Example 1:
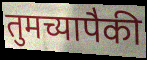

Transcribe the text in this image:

तुमच्यापैकी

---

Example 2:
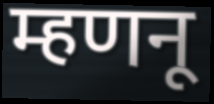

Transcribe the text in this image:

म्हणनू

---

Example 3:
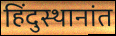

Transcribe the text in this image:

हिंदुस्थानांत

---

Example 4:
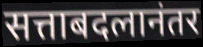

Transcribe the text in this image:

सत्ताबदलानंतर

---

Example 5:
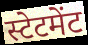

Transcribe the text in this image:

स्टेटमेंट